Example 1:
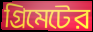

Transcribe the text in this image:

গ্রিমেটের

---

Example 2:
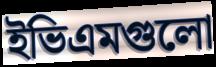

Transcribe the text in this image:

ইভিএমগুলো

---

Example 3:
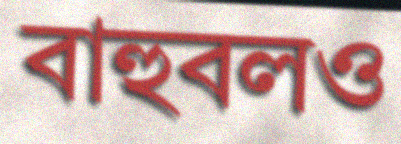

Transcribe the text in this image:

বাহুবলও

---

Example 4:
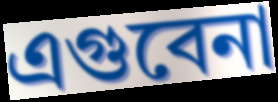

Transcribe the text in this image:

এগুবেনা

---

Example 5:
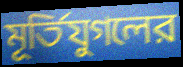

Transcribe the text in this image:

মূর্তিযুগলের